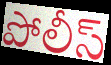
పోలీస్